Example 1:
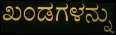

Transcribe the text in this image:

ಖಂಡಗಳನ್ನು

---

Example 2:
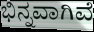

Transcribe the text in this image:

ಭಿನ್ನವಾಗಿವೆ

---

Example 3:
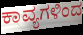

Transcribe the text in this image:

ಕಾವ್ಯಗಳಿಂದ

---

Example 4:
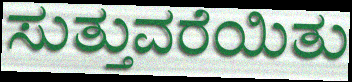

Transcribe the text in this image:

ಸುತ್ತುವರೆಯಿತು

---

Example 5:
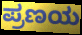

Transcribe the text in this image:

ಪ್ರಣಯ